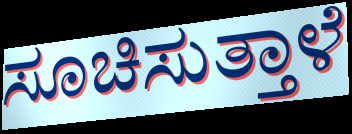
ಸೂಚಿಸುತ್ತಾಳೆ